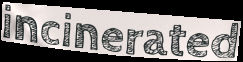
incinerated